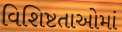
વિશિષ્ટતાઓમાં